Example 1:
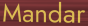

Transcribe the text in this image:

Mandar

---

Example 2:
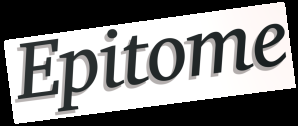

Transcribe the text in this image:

Epitome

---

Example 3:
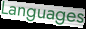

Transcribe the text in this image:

Languages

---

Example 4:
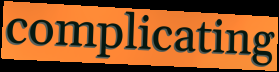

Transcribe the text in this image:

complicating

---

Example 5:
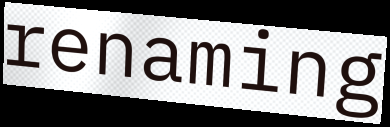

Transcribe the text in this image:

renaming